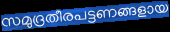
സമുദ്രതീരപട്ടണങ്ങളായ